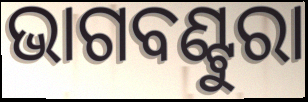
ଭାଗବଣ୍ଟୁରା